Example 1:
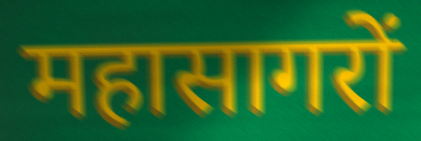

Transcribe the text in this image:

महासागरों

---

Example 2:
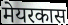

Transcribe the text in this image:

मेयरकास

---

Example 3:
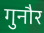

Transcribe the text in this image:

गुनौर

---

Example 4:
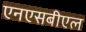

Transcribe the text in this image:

एनएसबीएल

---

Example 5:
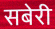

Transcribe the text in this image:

सबेरी